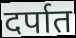
दर्पात